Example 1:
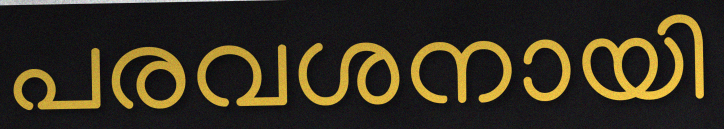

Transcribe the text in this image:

പരവശനായി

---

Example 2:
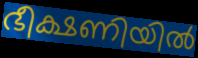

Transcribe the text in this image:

ഭീക്ഷണിയിൽ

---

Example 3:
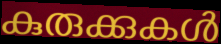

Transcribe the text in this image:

കുരുക്കുകൾ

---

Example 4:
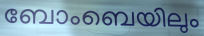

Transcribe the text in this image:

ബോംബെയിലും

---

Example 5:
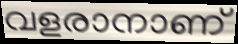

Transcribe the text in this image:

വളരാനാണ്